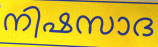
നിഷസാദ